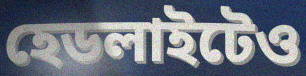
হেডলাইটেও